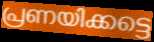
പ്രണയിക്കട്ടെ